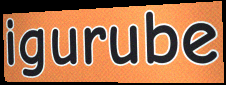
igurube